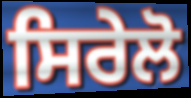
ਸਿਰੇਲੋ